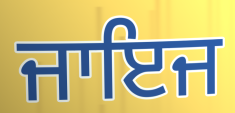
ਜਾਇਜ